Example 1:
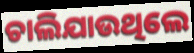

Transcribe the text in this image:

ଚାଲିଯାଉଥିଲେ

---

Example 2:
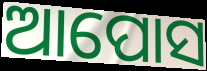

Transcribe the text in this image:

ଆପୋସ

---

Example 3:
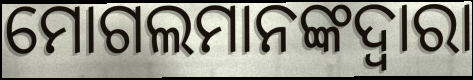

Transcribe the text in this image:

ମୋଗଲମାନଙ୍କଦ୍ୱାରା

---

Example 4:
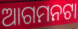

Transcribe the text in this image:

ଆଗମନଟା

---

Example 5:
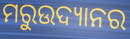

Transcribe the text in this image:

ମରୁଉଦ୍ୟାନର